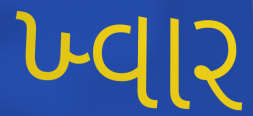
ખ્વાર